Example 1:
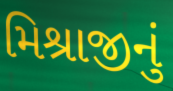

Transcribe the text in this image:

મિશ્રાજીનું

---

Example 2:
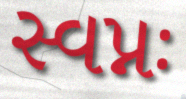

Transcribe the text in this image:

સ્વપ્નઃ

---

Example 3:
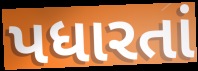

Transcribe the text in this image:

પધારતાં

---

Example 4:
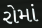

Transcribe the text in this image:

રોમાં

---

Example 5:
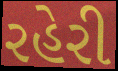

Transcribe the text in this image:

રહેરી